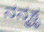
ನನ್ಮಕ್ಳ